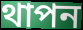
থাপন